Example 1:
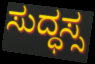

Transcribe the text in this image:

ಸುದ್ಧಸ್ಸ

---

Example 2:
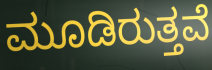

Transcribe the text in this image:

ಮೂಡಿರುತ್ತವೆ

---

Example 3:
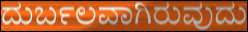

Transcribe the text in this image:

ದುರ್ಬಲವಾಗಿರುವುದು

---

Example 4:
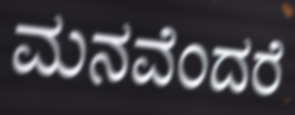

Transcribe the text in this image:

ಮನವೆಂದರೆ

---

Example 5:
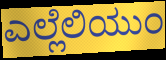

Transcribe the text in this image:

ಎಲ್ಲೆಲಿಯುಂ